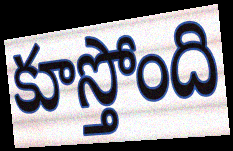
కూస్తోంది